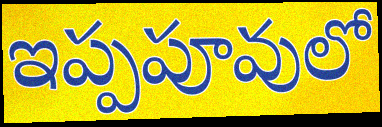
ఇప్పపూవులో